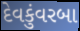
દેવકુંવરબા